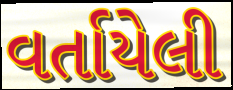
વર્તાયેલી